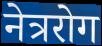
नेत्ररोग